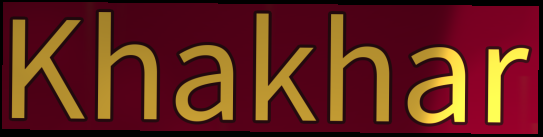
Khakhar